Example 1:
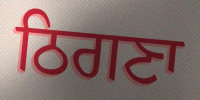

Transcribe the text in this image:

ਠਿਗਣਾ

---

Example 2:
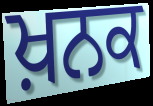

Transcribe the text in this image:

ਖ਼ਨਕ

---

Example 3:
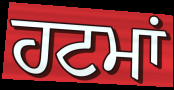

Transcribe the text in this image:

ਹਟਮਾਂ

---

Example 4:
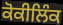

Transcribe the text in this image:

ਕੋਕੀਲਿੰਕ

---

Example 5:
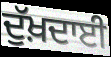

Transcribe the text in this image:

ਦੁੱਖ਼ਦਾਈ